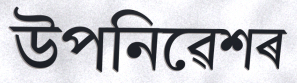
উপনিৱেশৰ